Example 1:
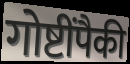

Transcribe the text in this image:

गोष्टींपैकी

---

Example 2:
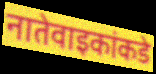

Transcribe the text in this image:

नातेवाइकांकडे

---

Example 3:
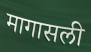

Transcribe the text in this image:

मागासली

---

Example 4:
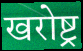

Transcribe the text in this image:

खरोष्ट्र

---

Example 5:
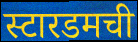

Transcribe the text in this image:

स्टारडमची